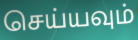
செய்யவும்